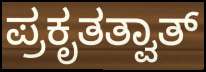
ಪ್ರಕೃತತ್ವಾತ್